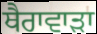
ਥੈਰਾਵਾੜਾ